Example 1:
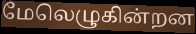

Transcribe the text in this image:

மேலெழுகின்றன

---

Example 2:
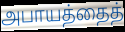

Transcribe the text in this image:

அபாயத்தைத்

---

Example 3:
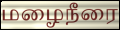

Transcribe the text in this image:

மழைநீரை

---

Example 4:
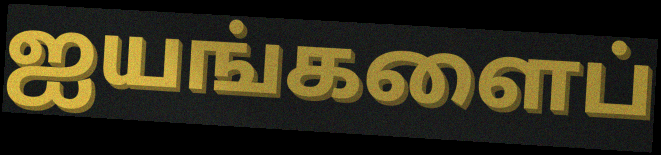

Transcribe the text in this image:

ஐயங்களைப்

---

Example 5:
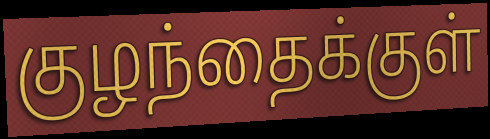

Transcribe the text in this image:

குழந்தைக்குள்